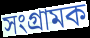
সংগ্ৰামক